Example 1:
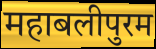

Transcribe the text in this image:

महाबलीपुरम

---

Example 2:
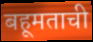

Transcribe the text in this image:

बहूमताची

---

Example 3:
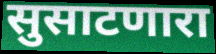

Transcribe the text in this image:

सुसाटणारा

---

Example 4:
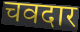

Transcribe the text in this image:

चवदार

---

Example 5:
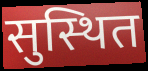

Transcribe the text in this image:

सुस्थित